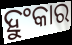
ହୁଂକାର